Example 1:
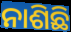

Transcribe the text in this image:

ନାଶିଛି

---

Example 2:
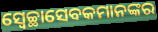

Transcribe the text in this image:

ସ୍ୱେଚ୍ଛାସେବକମାନଙ୍କର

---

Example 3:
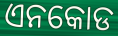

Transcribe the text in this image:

ଏନକୋଡ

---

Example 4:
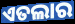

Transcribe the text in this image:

ଏତଲାର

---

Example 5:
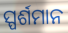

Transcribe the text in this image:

ସ୍ପର୍ଶମାନ